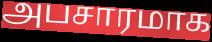
அபசாரமாக